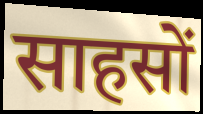
साहसों